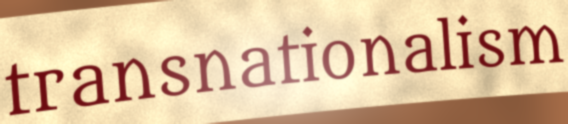
transnationalism